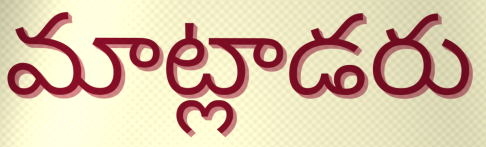
మాట్లాడరు